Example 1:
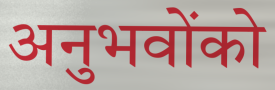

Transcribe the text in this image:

अनुभवोंको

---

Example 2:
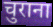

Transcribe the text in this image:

चुराना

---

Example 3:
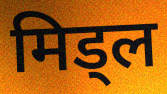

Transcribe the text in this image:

मिड्ल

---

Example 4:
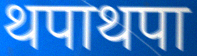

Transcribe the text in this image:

थपाथपा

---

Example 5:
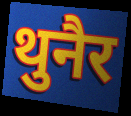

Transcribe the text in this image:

थुनैर